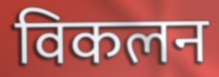
विकलन